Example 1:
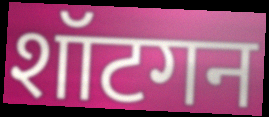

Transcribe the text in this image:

शॉटगन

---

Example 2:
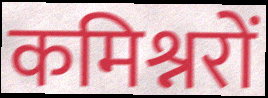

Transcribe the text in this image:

कमिश्नरों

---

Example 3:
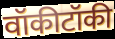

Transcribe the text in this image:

वॉकीटॉकी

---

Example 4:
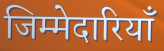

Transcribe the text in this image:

जिम्मेदारियाँ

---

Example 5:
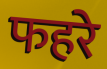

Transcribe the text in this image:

फहरे